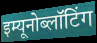
इम्यूनोब्लॉटिंग